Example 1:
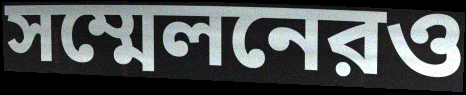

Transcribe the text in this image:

সম্মেলনেরও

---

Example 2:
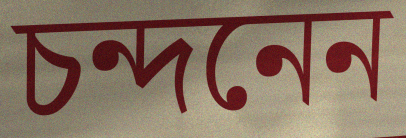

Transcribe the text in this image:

চন্দনেন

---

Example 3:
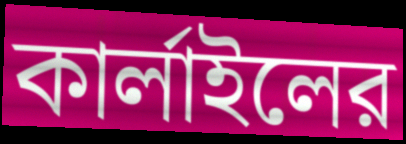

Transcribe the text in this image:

কার্লাইলের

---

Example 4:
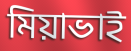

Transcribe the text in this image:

মিয়াভাই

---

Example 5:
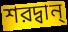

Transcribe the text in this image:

শরদ্বান্